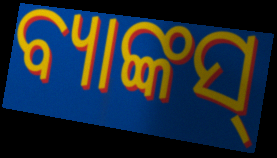
ବ୍ୟାଙ୍କସ୍